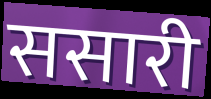
ससारी